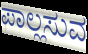
ಪಾಲ್ಲಸುವ